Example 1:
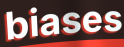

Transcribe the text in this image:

biases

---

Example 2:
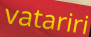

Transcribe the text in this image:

vatariri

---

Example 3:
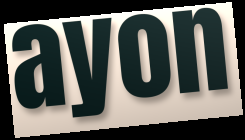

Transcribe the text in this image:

ayon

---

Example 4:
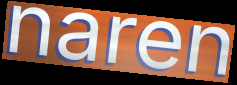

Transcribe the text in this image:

naren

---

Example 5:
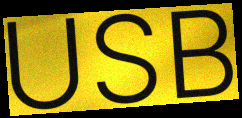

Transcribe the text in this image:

USB